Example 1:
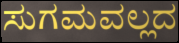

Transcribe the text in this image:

ಸುಗಮವಲ್ಲದ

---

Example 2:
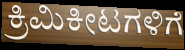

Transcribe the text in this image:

ಕ್ರಿಮಿಕೀಟಗಳಿಗೆ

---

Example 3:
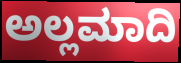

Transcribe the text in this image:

ಅಲ್ಲಮಾದಿ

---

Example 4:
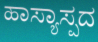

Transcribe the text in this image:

ಹಾಸ್ಯಾಸ್ಪದ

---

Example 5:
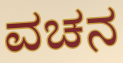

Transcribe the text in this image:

ವಚನ